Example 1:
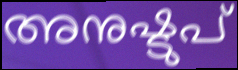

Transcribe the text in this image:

അനുഷ്ടുപ്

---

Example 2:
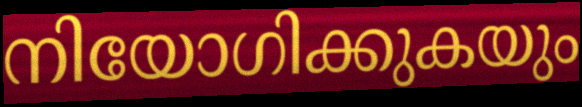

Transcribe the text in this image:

നിയോഗിക്കുകയും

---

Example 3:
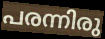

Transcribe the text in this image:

പരന്നിരു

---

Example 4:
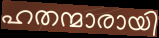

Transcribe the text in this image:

ഹതന്മാരായി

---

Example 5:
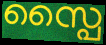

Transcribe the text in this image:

സ്പൈ